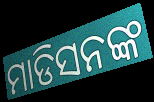
ମାଡିସନଙ୍କ